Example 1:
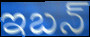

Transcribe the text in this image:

ఇబన్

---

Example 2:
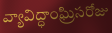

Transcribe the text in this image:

వ్యావిద్ధాంఘ్రిసరోజు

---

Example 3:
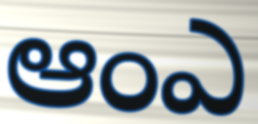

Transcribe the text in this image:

ఆంఎ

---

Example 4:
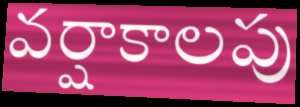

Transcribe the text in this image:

వర్షాకాలపు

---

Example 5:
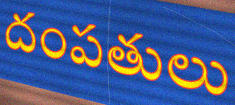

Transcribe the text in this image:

దంపతులు